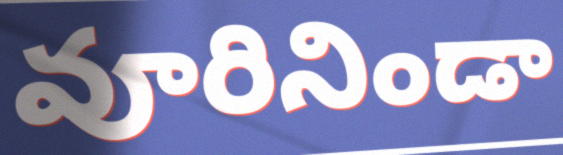
వూరినిండా